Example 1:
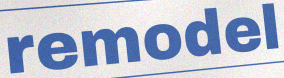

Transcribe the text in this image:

remodel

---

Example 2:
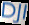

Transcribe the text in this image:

DJI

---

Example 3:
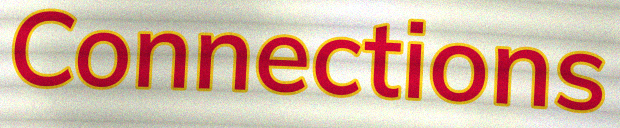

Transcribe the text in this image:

Connections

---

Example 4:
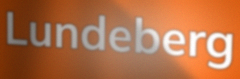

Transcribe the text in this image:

Lundeberg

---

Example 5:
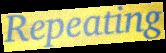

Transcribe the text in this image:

Repeating